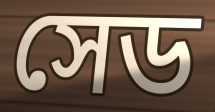
সেড